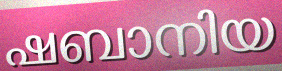
ഷബാനിയ